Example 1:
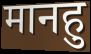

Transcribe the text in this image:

मानहु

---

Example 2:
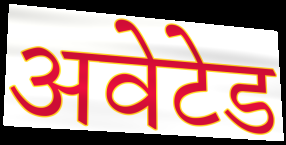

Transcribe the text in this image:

अवेटेड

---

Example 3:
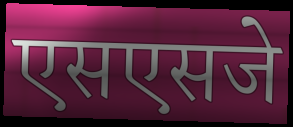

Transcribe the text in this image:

एसएसजे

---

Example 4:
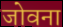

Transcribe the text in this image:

जोवना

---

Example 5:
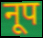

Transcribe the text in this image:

नूप